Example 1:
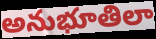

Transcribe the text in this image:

అనుభూతిలా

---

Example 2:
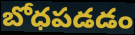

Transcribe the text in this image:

బోధపడడం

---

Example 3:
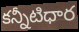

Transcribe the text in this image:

కన్నీటిధార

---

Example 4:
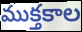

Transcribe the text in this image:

ముక్తకాల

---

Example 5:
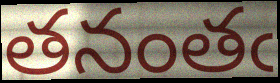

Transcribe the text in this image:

తనంతఁ